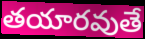
తయారవుతే